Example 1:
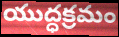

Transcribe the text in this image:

యుద్ధక్రమం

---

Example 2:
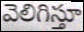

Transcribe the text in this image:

వెలిగిస్తూ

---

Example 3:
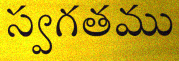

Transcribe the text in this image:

స్వగతము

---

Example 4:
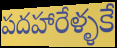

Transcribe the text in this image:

పదహారేళ్ళకే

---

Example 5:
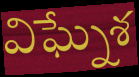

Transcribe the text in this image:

విఘ్నేశ